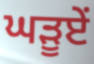
ਘੜੂਏਂ